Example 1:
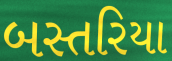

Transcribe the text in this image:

બસ્તરિયા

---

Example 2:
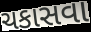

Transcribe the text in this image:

ચકાસવા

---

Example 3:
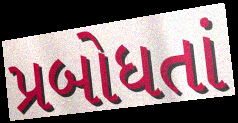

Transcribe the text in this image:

પ્રબોધતાં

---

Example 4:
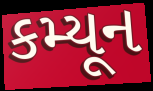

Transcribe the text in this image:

કમ્યૂન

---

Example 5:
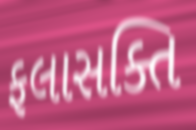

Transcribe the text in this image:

ફલાસક્તિ